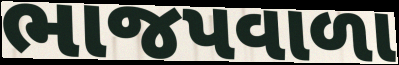
ભાજપવાળા